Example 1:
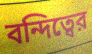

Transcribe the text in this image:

বন্দিত্বের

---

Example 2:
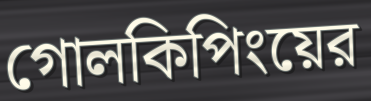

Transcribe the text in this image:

গোলকিপিংয়ের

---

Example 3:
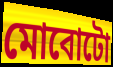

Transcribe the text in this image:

মোবোটো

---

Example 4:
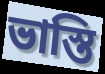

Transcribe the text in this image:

ভাস্তি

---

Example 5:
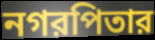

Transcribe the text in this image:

নগরপিতার